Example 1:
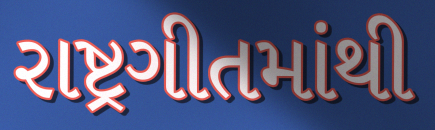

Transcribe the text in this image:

રાષ્ટ્રગીતમાંથી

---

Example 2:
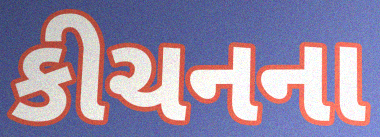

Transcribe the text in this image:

કીચનના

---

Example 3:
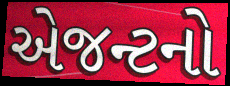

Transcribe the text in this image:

એજન્ટનો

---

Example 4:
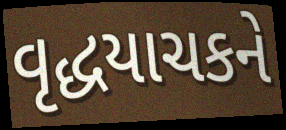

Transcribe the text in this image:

વૃદ્ધયાચકને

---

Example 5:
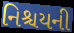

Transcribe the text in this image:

નિશ્ચયની